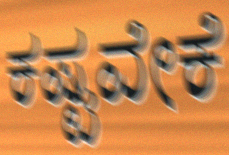
ಕಷ್ಟವೇಕೆ